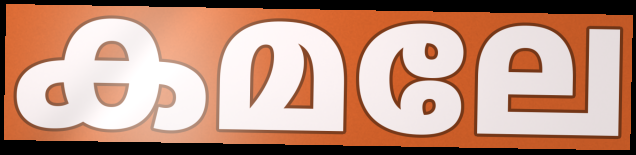
കമലേ